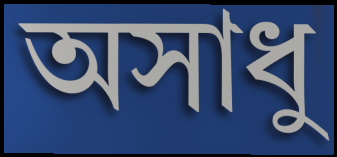
অসাধু